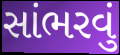
સાંભરવું